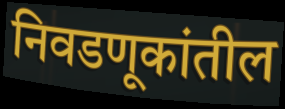
निवडणूकांतील